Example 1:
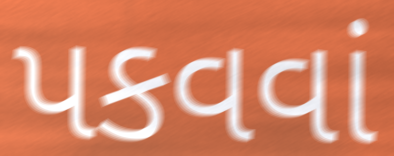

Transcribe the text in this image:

પકવવાં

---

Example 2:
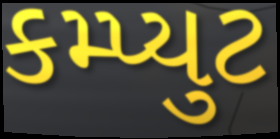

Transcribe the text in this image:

કમ્પ્યુટ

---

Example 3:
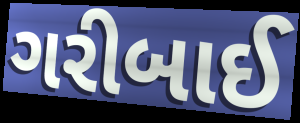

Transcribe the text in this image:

ગરીબાઈ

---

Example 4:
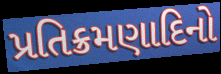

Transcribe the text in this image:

પ્રતિક્રમણાદિનો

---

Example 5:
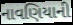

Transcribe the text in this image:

નાવણિયાની